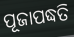
ପୂଜାପଦ୍ଧତି